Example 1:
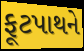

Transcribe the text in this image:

ફૂટપાથને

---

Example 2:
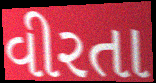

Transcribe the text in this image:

વીરતા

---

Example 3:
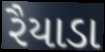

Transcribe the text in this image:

રૈયાડા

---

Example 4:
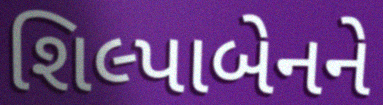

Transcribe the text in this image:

શિલ્પાબેનને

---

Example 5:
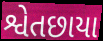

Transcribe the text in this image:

શ્વેતછાયા